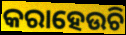
କରାହେଉଚି